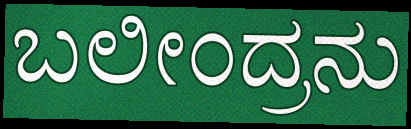
ಬಲೀಂದ್ರನು